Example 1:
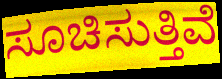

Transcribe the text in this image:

ಸೂಚಿಸುತ್ತಿವೆ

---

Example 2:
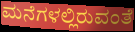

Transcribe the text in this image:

ಮನೆಗಳಲ್ಲಿರುವಂತೆ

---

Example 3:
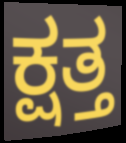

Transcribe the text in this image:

ಕ್ಷತ್ತ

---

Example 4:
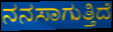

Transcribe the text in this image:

ನನಸಾಗುತ್ತಿದೆ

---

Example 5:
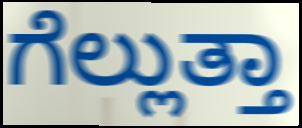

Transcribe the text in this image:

ಗೆಲ್ಲುತ್ತಾ